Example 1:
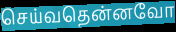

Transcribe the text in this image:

செய்வதென்னவோ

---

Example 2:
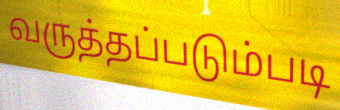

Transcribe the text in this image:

வருத்தப்படும்படி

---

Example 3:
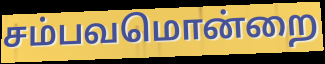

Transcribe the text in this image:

சம்பவமொன்றை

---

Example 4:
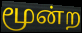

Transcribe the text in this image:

மூன்ற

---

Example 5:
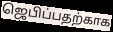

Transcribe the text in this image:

ஜெபிப்பதற்காக